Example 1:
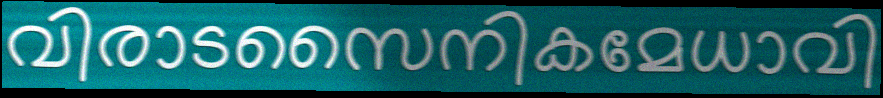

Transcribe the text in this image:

വിരാടസൈനികമേധാവി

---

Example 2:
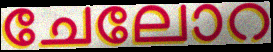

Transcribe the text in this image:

ചേലോറ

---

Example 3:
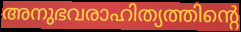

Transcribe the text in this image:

അനുഭവരാഹിത്യത്തിന്റെ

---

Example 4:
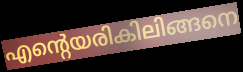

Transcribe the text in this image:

എന്റെയരികിലിങ്ങനെ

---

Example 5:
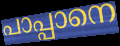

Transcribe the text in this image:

പാപ്പാനെ